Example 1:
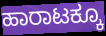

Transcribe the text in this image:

ಹಾರಾಟಕ್ಕೂ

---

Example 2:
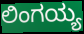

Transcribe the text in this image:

ಲಿಂಗಯ್ಯ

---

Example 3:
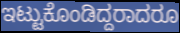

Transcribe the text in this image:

ಇಟ್ಟುಕೊಂಡಿದ್ದರಾದರೂ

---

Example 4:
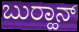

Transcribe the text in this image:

ಬುರ‍್ಹಾನ್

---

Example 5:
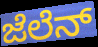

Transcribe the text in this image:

ಜೆಲೆನ್